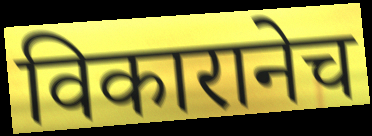
विकारानेच